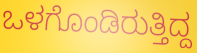
ಒಳಗೊಂಡಿರುತ್ತಿದ್ದ